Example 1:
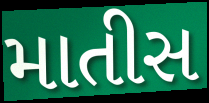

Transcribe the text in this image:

માતીસ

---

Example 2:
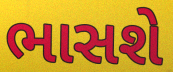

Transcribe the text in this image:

ભાસશે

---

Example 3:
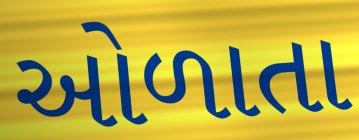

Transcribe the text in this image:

ઓળાતા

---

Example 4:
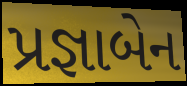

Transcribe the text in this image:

પ્રજ્ઞાબેન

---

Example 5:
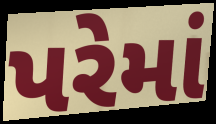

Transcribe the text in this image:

પરેમાં